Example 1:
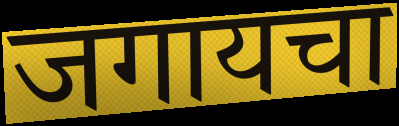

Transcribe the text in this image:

जगायचा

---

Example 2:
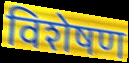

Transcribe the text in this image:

विशेषण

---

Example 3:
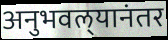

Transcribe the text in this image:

अनुभवल्यानंतर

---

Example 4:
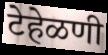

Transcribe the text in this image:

टेहेळणी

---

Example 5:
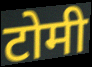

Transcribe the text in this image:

टोमी